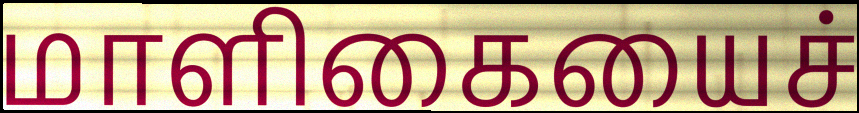
மாளிகையைச்